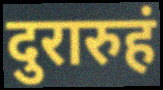
दुरारुहं